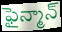
ఫైన్మాన్